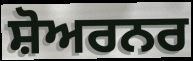
ਸ਼ੋਅਰਨਰ